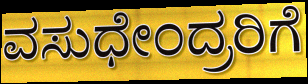
ವಸುಧೇಂದ್ರರಿಗೆ